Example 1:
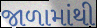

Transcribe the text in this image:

જાળામાંથી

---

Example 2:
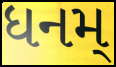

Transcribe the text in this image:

ધનમ્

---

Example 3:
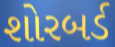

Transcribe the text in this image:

શોરબર્ડ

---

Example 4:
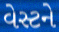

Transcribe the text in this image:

વેસ્ટને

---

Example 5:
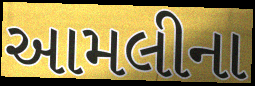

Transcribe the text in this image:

આમલીના